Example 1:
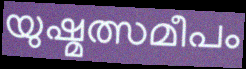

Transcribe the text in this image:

യുഷ്മത്സമീപം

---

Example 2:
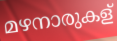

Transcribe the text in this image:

മഴനാരുകള്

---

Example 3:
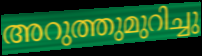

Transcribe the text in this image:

അറുത്തുമുറിച്ചു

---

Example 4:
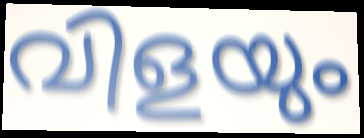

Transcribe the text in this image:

വിളയും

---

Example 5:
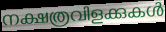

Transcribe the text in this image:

നക്ഷത്രവിളക്കുകൾ